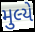
મુલ્યે